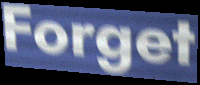
Forget